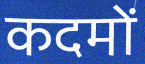
कदमों